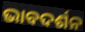
ଭାବଦର୍ଶନ